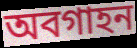
অবগাহন